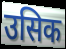
उसिक